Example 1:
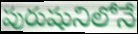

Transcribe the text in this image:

పురుషునిలోనే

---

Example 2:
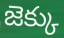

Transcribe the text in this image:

జెక్కు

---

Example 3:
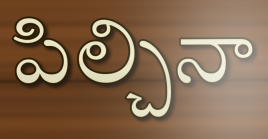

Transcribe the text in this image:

పిల్చినా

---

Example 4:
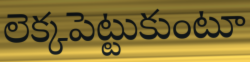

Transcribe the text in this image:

లెక్కపెట్టుకుంటూ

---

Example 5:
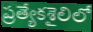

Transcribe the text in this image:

ప్రత్యేకశైలిలో